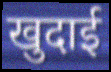
खुदाई